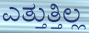
ಎತ್ತುತ್ತಿಲ್ಲ